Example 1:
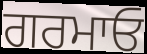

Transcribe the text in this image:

ਗਰਮਾਓ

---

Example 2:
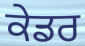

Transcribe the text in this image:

ਕੇਡਰ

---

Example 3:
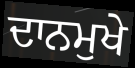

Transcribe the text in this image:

ਦਾਨਮੁਖੇ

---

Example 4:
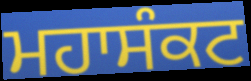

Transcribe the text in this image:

ਮਹਾਸੰਕਟ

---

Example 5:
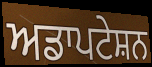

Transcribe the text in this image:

ਅਡਾਪਟੇਸ਼ਨ